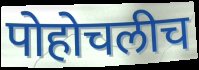
पोहोचलीच